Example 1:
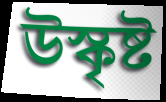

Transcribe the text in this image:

উস্কৃষ্ট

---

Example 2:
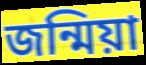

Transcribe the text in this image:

জন্মিয়া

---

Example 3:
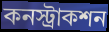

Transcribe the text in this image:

কনস্ট্রাকশন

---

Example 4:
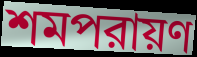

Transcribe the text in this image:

শমপরায়ণ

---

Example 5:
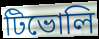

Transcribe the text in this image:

টিভোলি